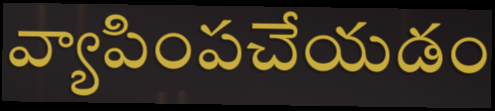
వ్యాపింపచేయడం